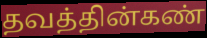
தவத்தின்கண்